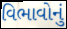
વિભાવોનું